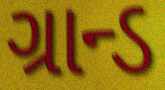
ગ્રાન્ડ